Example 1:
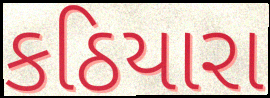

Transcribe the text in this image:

કઠિયારા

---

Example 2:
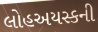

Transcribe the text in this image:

લોહઅયસ્કની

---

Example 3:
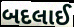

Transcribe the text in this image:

બદલાઈ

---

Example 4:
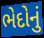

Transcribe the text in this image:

ભેદોનું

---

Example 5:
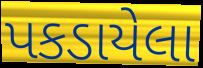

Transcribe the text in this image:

પકડાયેલા